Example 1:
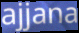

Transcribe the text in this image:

ajjana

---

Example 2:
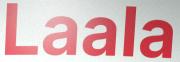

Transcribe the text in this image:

Laala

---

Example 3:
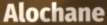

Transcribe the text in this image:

Alochane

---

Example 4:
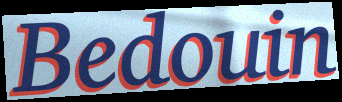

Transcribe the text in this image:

Bedouin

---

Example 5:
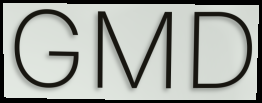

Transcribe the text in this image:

GMD